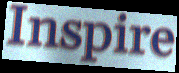
Inspire